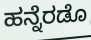
ಹನ್ನೆರಡೊ